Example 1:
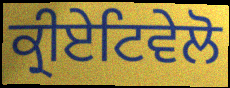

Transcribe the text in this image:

ਕ੍ਰੀਏਟਿਵੇਲੋ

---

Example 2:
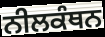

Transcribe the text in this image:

ਨੀਲਕੰਥਨ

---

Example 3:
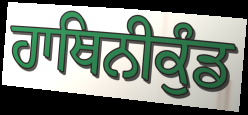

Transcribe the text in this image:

ਹਾਥਿਨੀਕੁੰਡ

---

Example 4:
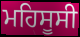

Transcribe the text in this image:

ਮਹਿਸੂਸੀ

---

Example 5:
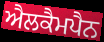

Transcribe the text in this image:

ਐਲਕੈਮਪੈਨ